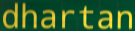
dhartan